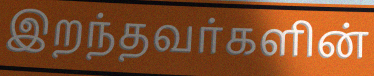
இறந்தவர்களின்